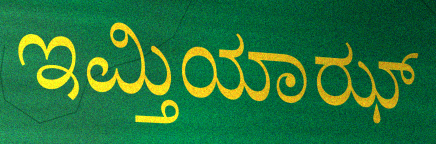
ಇಮ್ತಿಯಾಝ್